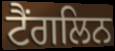
ਟੈਂਗਲਿਨ